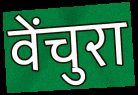
वेंचुरा